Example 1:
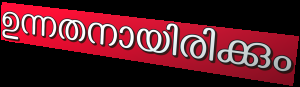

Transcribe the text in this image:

ഉന്നതനായിരിക്കും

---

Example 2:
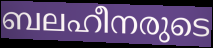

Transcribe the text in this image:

ബലഹീനരുടെ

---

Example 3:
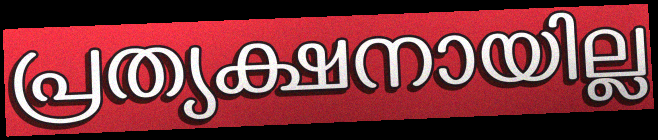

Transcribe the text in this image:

പ്രത്യക്ഷനായില്ല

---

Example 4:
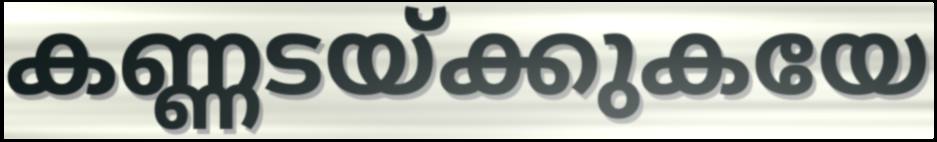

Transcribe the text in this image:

കണ്ണടയ്ക്കുകയേ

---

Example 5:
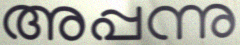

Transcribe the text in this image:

അപ്പന്നു